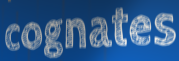
cognates